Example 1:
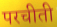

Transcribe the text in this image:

परचीती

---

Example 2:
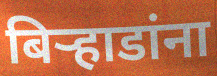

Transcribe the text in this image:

बिऱ्हाडांना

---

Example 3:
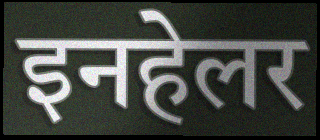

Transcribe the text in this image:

इनहेलर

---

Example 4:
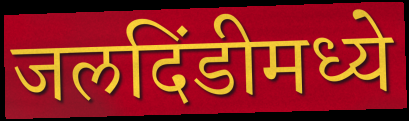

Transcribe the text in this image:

जलदिंडीमध्ये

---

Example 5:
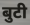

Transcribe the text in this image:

बुटी